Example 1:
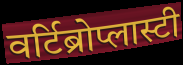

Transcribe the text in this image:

वर्टिब्रोप्लास्टी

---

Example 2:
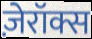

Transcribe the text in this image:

ज़ेरॉक्स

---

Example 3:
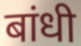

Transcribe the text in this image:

बांधी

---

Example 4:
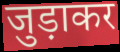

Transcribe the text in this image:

जुड़ाकर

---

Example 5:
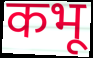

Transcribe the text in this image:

कभू